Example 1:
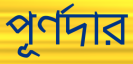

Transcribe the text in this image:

পূর্ণদার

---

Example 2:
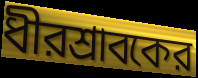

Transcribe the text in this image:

ধীরশ্রাবকের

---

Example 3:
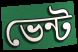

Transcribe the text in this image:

ভেন্ট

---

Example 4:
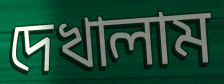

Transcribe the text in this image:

দেখালাম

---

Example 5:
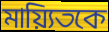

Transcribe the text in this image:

মায়্যিতকে